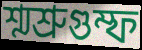
শ্মশ্রুগুম্ফ